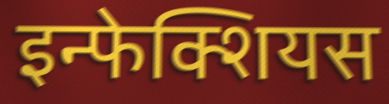
इन्फेक्शियस